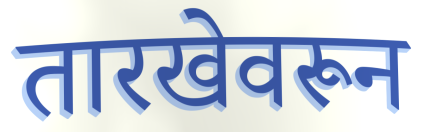
तारखेवरून